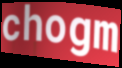
chogm